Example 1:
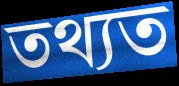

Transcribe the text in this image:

তথ্যত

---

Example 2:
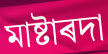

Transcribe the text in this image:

মাষ্টাৰদা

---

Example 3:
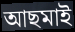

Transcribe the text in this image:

আছমাই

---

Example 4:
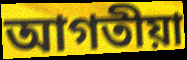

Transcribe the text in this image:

আগতীয়া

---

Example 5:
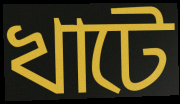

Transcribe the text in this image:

খাটে